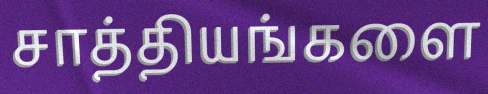
சாத்தியங்களை